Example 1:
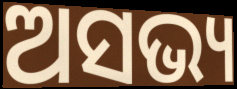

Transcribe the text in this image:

ଅସଭ୍ୟ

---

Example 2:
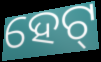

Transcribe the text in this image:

ହେଟ୍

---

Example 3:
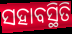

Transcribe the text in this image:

ସହାବସ୍ଥିତି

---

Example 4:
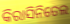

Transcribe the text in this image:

କିରାସିନିତେଲ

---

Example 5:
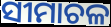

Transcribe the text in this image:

ସୀମାଚଳ